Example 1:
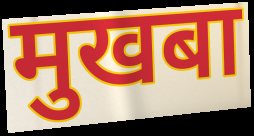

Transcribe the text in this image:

मुखबा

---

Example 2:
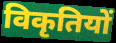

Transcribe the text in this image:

विकृतियों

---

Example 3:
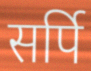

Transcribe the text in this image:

सर्पि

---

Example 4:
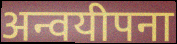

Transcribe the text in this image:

अन्वयीपना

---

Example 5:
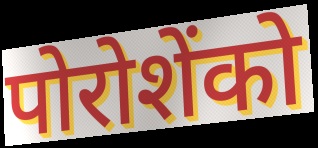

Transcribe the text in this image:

पोरोशेंको